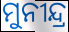
ମୁନୀନ୍ଦ୍ର